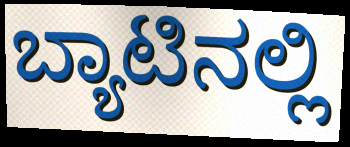
ಬ್ಯಾಟಿನಲ್ಲಿ